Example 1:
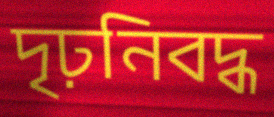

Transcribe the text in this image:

দৃঢ়নিবদ্ধ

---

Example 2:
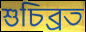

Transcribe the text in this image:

শুচিব্রত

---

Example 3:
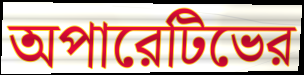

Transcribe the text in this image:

অপারেটিভের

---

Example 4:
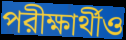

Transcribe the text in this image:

পরীক্ষার্থীও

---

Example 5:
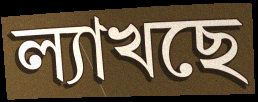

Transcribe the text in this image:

ল্যাখছে